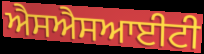
ਐਸਐਸਆਈਟੀ